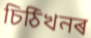
চিঠিখনৰ